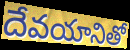
దేవయానితో